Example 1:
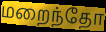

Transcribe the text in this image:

மறைந்தோ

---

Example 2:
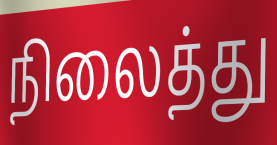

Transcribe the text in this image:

நிலைத்து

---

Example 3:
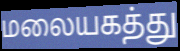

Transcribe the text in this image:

மலையகத்து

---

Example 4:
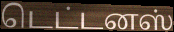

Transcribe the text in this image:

டெட்டனஸ்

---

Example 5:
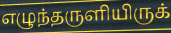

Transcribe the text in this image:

எழுந்தருளியிருக்